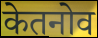
केतनोव